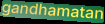
gandhamatan